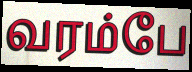
வரம்பே